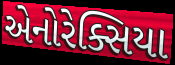
એનોરેક્સિયા